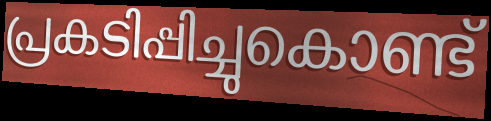
പ്രകടിപ്പിച്ചുകൊണ്ട്